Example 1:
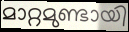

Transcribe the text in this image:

മാറ്റമുണ്ടായി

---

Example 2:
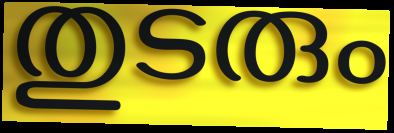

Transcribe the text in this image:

തുടരും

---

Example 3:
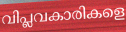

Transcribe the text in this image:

വിപ്ലവകാരികളെ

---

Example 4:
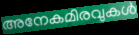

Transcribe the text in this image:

അനേകമിരവുകൾ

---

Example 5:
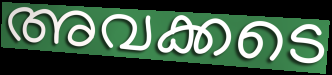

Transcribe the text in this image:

അവക്കടെ